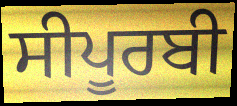
ਸੀਪੂਰਬੀ